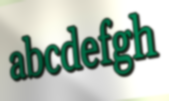
abcdefgh